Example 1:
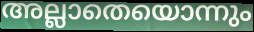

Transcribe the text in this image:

അല്ലാതെയൊന്നും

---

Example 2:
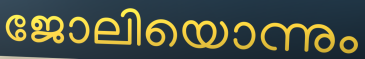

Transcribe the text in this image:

ജോലിയൊന്നും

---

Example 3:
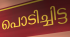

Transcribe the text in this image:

പൊടിച്ചിട്ട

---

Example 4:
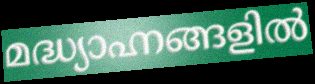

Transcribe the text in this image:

മദ്ധ്യാഹ്നങ്ങളിൽ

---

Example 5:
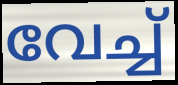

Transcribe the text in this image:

വേച്ച്